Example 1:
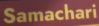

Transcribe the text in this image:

Samachari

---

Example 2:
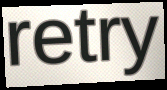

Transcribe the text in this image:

retry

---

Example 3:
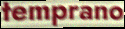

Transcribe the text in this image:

temprano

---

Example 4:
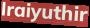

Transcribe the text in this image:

Iraiyuthir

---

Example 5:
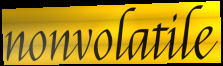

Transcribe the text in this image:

nonvolatile